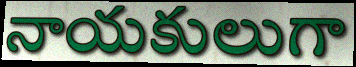
నాయకులుగా